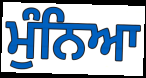
ਮੁੰਨਿਆ